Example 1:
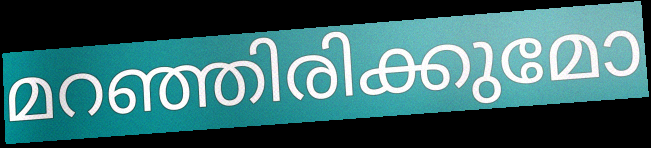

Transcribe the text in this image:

മറഞ്ഞിരിക്കുമോ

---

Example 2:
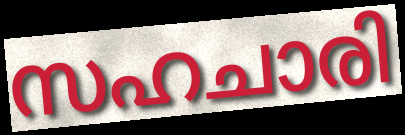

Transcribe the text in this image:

സഹചാരി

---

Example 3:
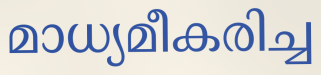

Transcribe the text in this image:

മാധ്യമീകരിച്ച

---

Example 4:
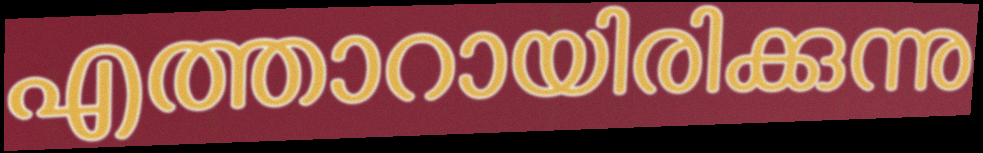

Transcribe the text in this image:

എത്താറായിരിക്കുന്നു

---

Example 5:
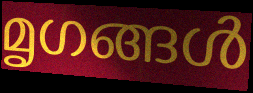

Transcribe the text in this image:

മൃഗങ്ങൾ